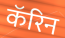
कॅरिन